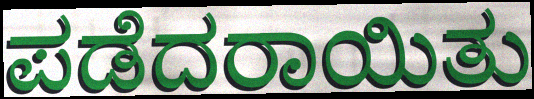
ಪಡೆದರಾಯಿತು